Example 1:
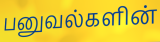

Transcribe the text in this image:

பனுவல்களின்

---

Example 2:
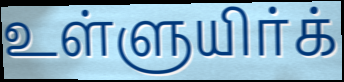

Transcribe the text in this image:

உள்ளுயிர்க்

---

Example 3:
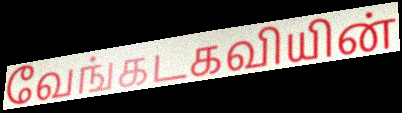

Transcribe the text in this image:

வேங்கடகவியின்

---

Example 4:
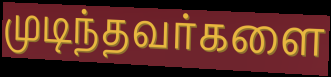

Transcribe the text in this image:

முடிந்தவர்களை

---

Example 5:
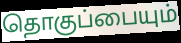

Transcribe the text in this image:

தொகுப்பையும்